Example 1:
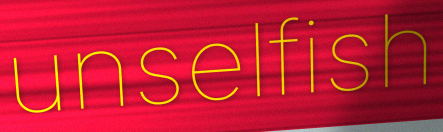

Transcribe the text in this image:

unselfish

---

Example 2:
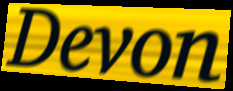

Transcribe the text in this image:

Devon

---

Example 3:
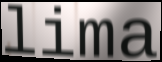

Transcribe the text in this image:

lima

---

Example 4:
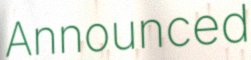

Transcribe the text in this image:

Announced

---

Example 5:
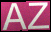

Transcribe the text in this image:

AZ